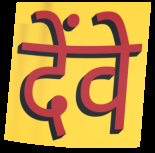
देंवे